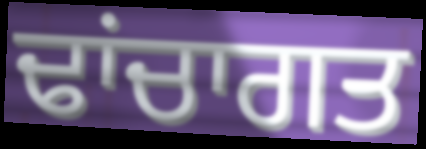
ਢਾਂਚਾਗਤ